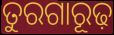
ତୁରଗାରୂଢ଼